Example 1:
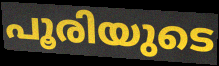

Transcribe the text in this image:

പൂരിയുടെ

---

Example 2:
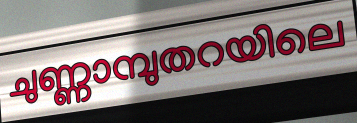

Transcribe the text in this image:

ചുണ്ണാമ്പുതറയിലെ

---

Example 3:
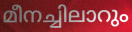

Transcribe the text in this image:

മീനച്ചിലാറും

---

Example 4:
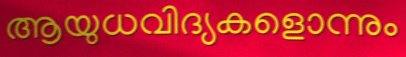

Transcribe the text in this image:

ആയുധവിദ്യകളൊന്നും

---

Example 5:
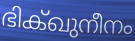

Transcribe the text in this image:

ഭിക്ഖുനീനം